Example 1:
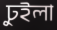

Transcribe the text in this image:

ঢুইলা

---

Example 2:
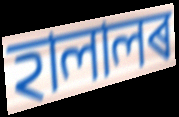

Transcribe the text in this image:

হালালৰ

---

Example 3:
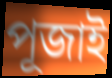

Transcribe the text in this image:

পূজাই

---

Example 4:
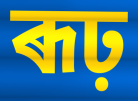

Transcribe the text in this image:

ৰূঢ়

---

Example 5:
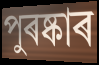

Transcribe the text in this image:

পুৰষ্কাৰ